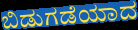
ಬಿಡುಗಡೆಯಾದ